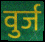
वुर्ज